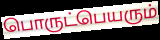
பொருட்பெயரும்